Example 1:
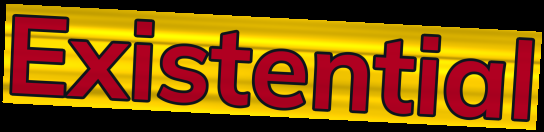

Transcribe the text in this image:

Existential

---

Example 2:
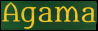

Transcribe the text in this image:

Agama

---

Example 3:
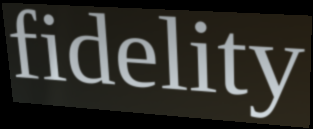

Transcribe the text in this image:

fidelity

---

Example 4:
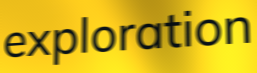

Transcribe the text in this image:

exploration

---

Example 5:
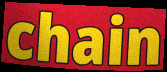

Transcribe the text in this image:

chain